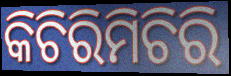
କିଚିରିମିଚିରି